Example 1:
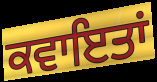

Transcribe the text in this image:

ਕਵਾਇਤਾਂ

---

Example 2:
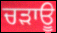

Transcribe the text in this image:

ਚੜਾਊ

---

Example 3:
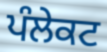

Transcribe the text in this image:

ਪੰਲੇਕਟ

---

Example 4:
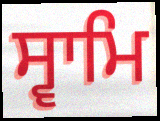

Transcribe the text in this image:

ਸ੍ਵਾਮਿ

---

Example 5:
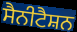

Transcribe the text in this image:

ਸੈਨੀਟੈਸ਼ਨ